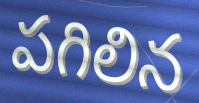
పగిలిన